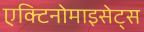
एक्टिनोमाइसेट्स